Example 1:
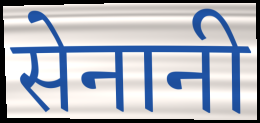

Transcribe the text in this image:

सेनानी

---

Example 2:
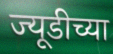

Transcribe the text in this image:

ज्यूडीच्या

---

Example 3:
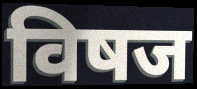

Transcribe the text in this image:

विषज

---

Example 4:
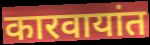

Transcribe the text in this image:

कारवायांत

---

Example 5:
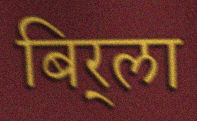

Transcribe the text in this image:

बिर्ला